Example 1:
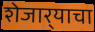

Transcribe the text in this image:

शेजार्‍याचा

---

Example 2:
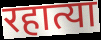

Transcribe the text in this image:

रहात्या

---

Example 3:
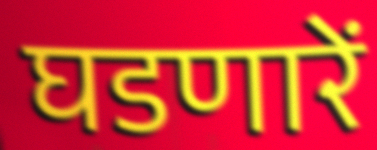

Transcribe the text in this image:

घडणारें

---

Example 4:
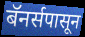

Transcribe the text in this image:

बॅनर्सपासून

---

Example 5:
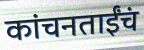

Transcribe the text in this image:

कांचनताईंचं